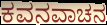
ಕವನವಾಚನ